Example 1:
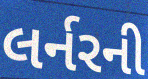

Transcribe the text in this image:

લર્નરની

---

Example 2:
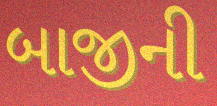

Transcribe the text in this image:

બાજીની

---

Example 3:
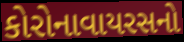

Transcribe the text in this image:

કોરોનાવાયરસનો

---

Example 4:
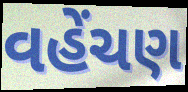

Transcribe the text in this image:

વહેંચણ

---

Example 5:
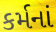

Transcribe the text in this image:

કર્મનાં